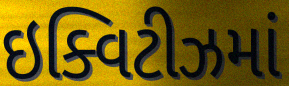
ઇક્વિટીઝમાં